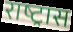
राष्ट्रास